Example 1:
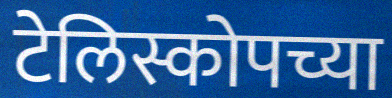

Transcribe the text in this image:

टेलिस्कोपच्या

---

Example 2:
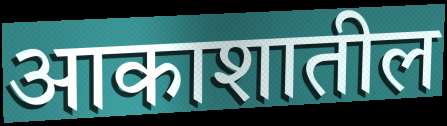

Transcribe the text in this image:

आकाशातील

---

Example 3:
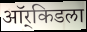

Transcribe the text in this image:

ऑर्किडला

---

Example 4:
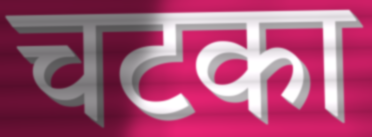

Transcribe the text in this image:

चटका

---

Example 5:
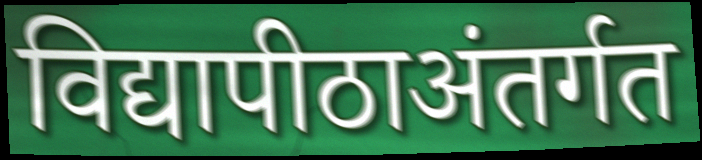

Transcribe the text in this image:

विद्यापीठाअंतर्गत